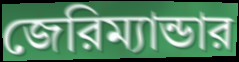
জেরিম্যান্ডার